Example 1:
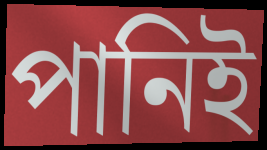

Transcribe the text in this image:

পানিই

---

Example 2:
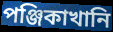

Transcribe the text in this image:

পঞ্জিকাখানি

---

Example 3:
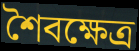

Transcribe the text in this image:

শৈবক্ষেত্র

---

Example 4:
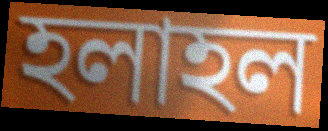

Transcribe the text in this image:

হলাহল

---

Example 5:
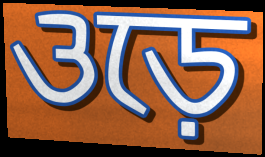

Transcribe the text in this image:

ওড়ে